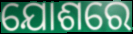
ଯୋଶରେ